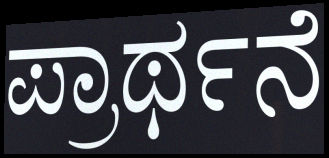
ಪ್ರಾರ್ಥನೆ